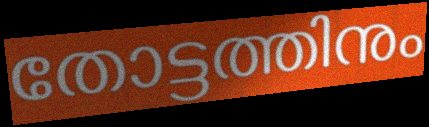
തോട്ടത്തിനും